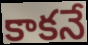
కాకనే